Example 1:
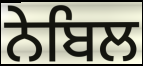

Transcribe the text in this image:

ਨੇਬਿਲ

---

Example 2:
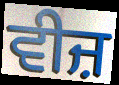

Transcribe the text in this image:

ਵੀਜ਼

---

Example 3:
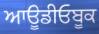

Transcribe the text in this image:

ਆਊਡੀਓਬੂਕ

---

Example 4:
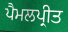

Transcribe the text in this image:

ਪੈਮਲਪ੍ਰੀਤ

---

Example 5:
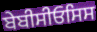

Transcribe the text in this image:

ਬੇਬੀਸੀਓਸਿਸ